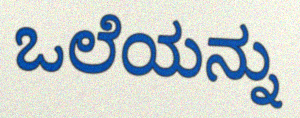
ಒಲೆಯನ್ನು